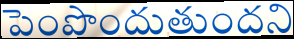
పెంపొందుతుందని